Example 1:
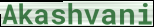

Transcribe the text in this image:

Akashvani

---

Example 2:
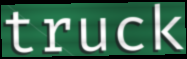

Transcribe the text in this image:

truck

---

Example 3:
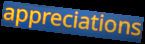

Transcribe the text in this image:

appreciations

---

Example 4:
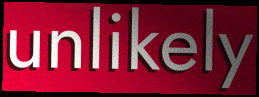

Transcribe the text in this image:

unlikely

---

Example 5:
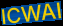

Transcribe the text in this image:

ICWAI